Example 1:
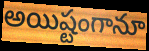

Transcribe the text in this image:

అయిష్టంగానూ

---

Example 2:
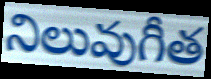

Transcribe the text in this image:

నిలువుగీత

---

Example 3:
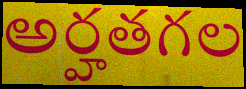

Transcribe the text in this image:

అర్హతగల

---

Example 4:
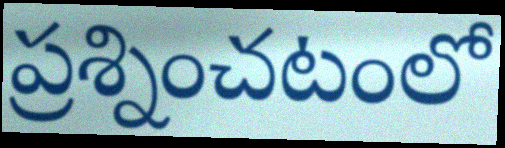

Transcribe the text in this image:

ప్రశ్నించటంలో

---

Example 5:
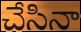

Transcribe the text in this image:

చేసినా